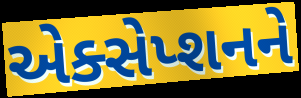
એક્સેપ્શનને